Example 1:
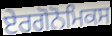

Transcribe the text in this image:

ਏਰਗੋਨੋਮਿਕਸ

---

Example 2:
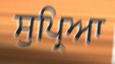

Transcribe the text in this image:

ਸੁਪ੍ਰਿਆ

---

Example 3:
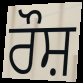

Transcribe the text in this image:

ਰੌਸ਼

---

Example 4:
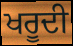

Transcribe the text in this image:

ਖਰੂਦੀ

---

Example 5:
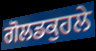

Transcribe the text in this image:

ਗੋਲਡਕੁਹਲੇ